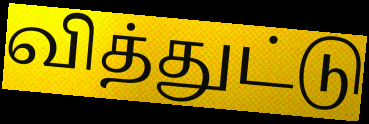
வித்துட்டு